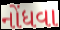
નોંધવા